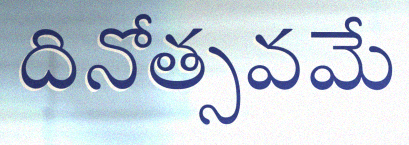
దినోత్సవమే